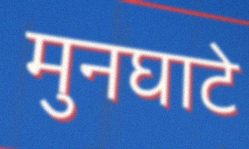
मुनघाटे